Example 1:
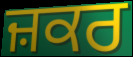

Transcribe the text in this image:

ਜ਼ਕਰ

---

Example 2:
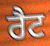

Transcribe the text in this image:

ਰੈਟ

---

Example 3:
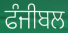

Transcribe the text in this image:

ਫੰਜੀਬਲ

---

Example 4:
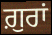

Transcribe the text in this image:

ਗ਼ੁਰਾਂ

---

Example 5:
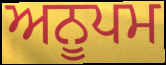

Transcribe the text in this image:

ਅਨੂਪਮ